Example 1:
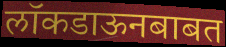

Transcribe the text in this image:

लॉकडाऊनबाबत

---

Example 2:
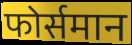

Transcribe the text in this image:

फोर्समान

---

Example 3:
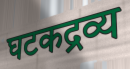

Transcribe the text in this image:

घटकद्रव्य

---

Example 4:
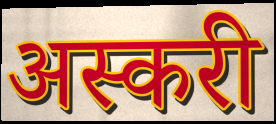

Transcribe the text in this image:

अस्करी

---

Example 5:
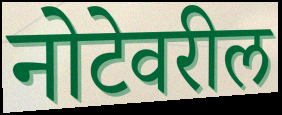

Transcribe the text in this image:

नोटेवरील